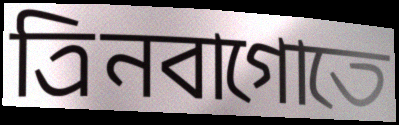
ত্রিনবাগোতে